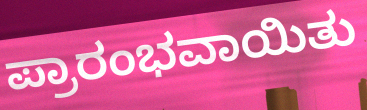
ಪ್ರಾರಂಭವಾಯಿತು